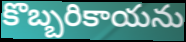
కొబ్బరికాయను